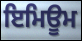
ਇਮਿਊਮ